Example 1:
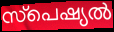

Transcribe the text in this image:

സ്‌പെഷ്യൽ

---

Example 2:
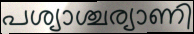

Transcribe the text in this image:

പശ്യാശ്ചര്യാണി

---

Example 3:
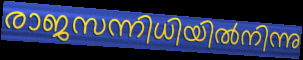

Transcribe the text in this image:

രാജസന്നിധിയിൽനിന്നു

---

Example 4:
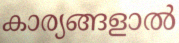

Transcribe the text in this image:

കാര്യങ്ങളാൽ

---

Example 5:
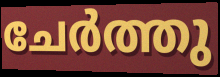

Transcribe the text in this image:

ചേർത്തു